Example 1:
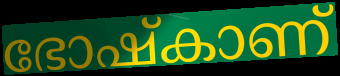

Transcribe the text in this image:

ഭോഷ്കാണ്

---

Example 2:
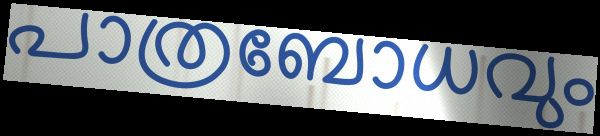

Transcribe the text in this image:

പാത്രബോധവും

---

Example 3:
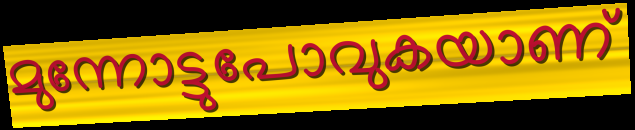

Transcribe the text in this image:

മുന്നോട്ടുപോവുകയാണ്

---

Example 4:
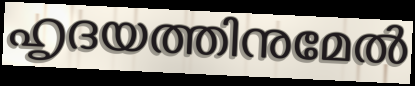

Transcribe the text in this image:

ഹൃദയത്തിനുമേൽ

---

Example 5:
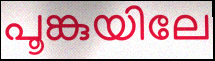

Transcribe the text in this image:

പൂങ്കുയിലേ